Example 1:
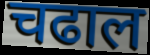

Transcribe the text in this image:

चढाल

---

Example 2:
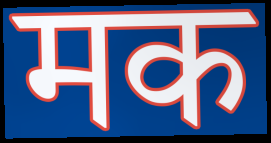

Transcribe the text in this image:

मक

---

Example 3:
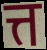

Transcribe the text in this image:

त्त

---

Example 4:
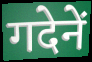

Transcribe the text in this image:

गदेनें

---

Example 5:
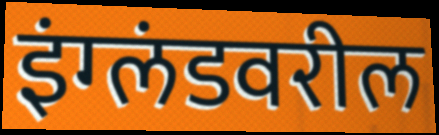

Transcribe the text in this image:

इंग्लंडवरील